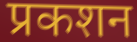
प्रकशन